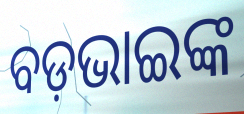
ବଡ଼ଭାଇଙ୍କ